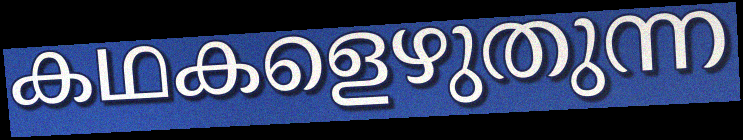
കഥകളെഴുതുന്ന